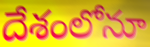
దేశంలోనూ